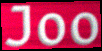
Joo